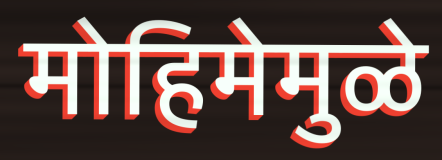
मोहिमेमुळे